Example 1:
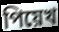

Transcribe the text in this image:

পিয়েখ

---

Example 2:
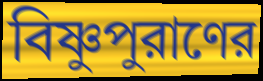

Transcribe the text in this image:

বিষ্ণুপুরাণের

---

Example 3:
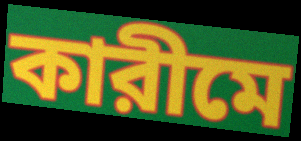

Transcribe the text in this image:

কারীমে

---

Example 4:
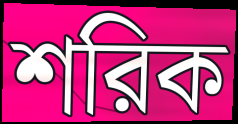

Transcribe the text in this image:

শরিক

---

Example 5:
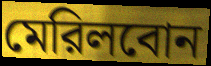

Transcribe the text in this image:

মেরিলবোন